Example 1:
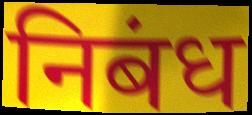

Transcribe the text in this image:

निबंध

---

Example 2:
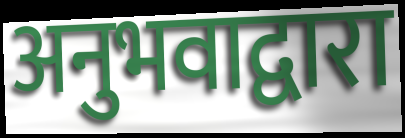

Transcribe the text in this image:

अनुभवाद्वारा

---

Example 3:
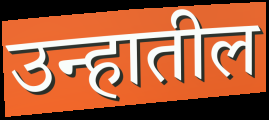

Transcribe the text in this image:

उन्हातील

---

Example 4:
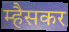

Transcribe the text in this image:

म्हैसकर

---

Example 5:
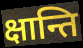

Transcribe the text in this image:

क्षान्ति